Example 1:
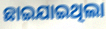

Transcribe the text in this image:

ଛାଇଯାଇଥିଲା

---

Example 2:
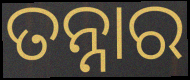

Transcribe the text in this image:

ତନ୍ନାର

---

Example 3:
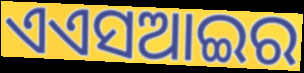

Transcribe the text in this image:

ଏଏସଆଇର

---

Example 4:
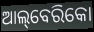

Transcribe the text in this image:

ଆଲ୍‌ବେରିକୋ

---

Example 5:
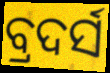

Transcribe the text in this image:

ବ୍ରଦର୍ସ